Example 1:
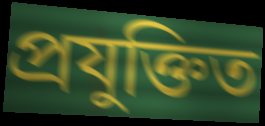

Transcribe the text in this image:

প্ৰযুক্তিত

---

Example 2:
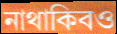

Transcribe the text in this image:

নাথাকিবও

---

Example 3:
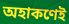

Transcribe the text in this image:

অহাকণেই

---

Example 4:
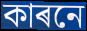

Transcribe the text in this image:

কাৰনে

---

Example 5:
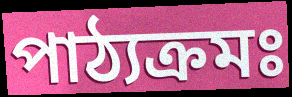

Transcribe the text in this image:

পাঠ্যক্ৰমঃ